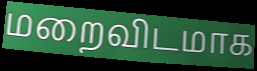
மறைவிடமாக